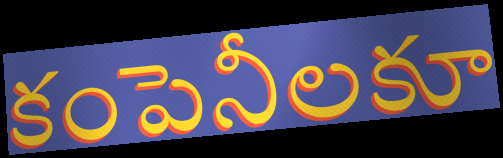
కంపెనీలకూ